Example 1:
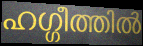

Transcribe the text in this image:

ഹഗ്ഗീത്തിൽ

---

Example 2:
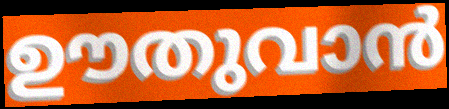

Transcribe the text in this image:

ഊതുവാൻ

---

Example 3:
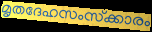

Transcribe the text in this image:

മൃതദേഹസംസ്‌ക്കാരം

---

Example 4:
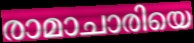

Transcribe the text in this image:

രാമാചാരിയെ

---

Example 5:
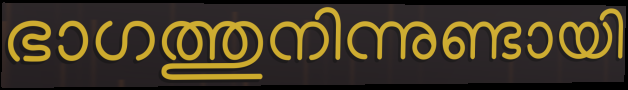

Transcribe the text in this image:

ഭാഗത്തുനിന്നുണ്ടായി